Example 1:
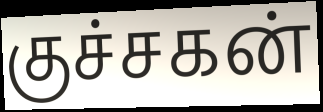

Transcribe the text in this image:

குச்சகன்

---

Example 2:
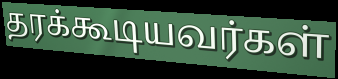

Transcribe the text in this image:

தரக்கூடியவர்கள்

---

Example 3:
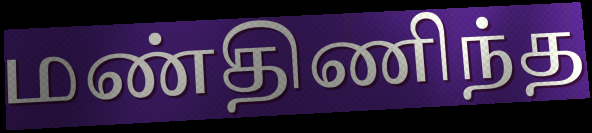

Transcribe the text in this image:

மண்திணிந்த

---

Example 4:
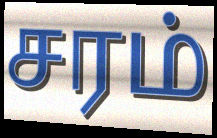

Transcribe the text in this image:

சரம்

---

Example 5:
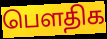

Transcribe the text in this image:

பெளதிக